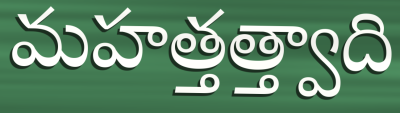
మహత్తత్త్వాది